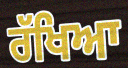
ਰੱਖਿਆ